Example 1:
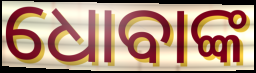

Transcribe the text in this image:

ଧୋବାଙ୍କ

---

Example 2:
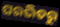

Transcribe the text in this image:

ଘରଭିତରୁ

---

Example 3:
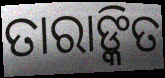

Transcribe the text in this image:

ତାରାଙ୍କିତ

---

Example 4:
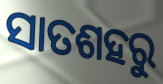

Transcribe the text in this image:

ସାତଶହରୁ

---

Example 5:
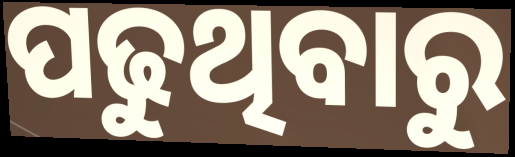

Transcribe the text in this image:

ପଢୁଥିବାରୁ